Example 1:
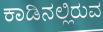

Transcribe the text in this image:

ಕಾಡಿನಲ್ಲಿರುವ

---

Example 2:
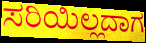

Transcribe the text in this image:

ಸರಿಯಿಲ್ಲದಾಗ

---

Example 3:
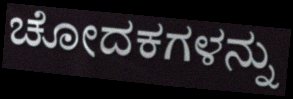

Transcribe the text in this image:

ಚೋದಕಗಳನ್ನು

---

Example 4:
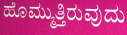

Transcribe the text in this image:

ಹೊಮ್ಮುತ್ತಿರುವುದು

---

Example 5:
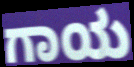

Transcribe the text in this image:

ಗಾಯ